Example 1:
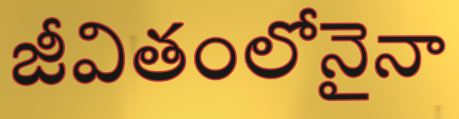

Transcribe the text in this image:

జీవితంలోనైనా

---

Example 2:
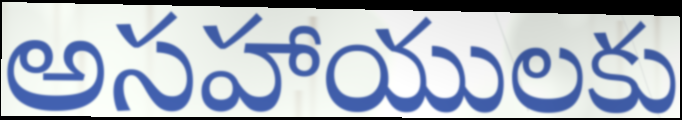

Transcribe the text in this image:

అసహాయులకు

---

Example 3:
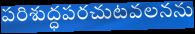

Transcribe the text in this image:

పరిశుద్ధపరచుటవలనను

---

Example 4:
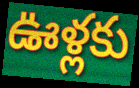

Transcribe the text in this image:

ఊళ్లకు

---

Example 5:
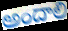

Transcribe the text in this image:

అందాలి